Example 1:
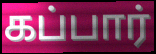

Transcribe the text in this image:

கப்பார்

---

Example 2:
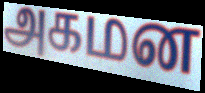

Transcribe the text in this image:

அகமன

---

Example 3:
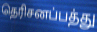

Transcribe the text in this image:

தெரிசனப்பத்து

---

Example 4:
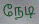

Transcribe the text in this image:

நேடி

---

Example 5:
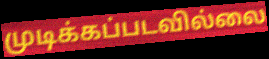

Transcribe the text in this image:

முடிக்கப்படவில்லை